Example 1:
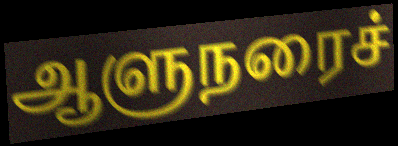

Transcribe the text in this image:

ஆளுநரைச்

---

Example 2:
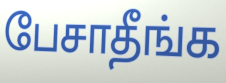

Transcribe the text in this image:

பேசாதீங்க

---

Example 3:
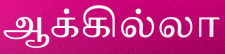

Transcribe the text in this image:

ஆக்கில்லா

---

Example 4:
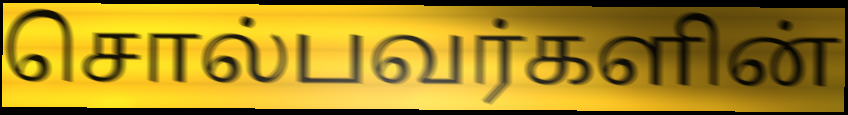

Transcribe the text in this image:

சொல்பவர்களின்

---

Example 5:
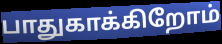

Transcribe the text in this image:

பாதுகாக்கிறோம்